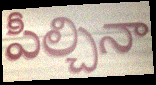
పీల్చినా